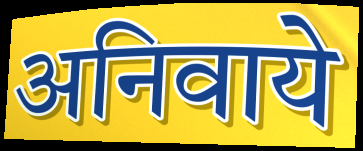
अनिवाये